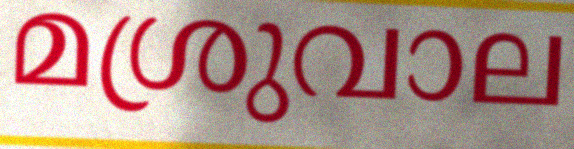
മശ്രുവാല